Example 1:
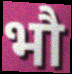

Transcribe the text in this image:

भौ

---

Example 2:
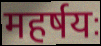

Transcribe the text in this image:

महर्षयः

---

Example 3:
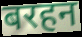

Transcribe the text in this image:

बरहन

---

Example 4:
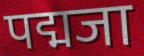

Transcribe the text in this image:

पद्मजा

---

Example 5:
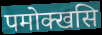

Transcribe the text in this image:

पमोक्खसि